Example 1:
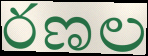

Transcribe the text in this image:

రణల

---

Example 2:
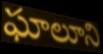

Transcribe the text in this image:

ఘాలూని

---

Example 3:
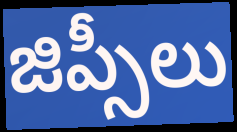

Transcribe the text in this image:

జిప్సీలు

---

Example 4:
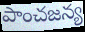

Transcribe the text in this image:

పాంచజన్య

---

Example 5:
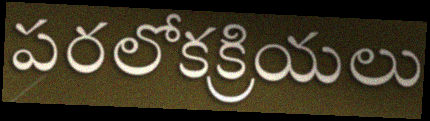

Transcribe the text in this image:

పరలోకక్రియలు